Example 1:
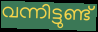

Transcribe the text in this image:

വന്നിട്ടുണ്ട്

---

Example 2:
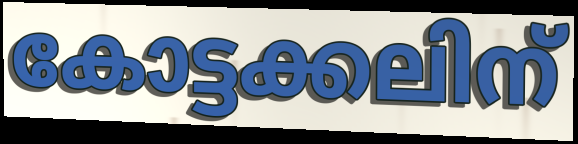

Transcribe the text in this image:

കോട്ടക്കലിന്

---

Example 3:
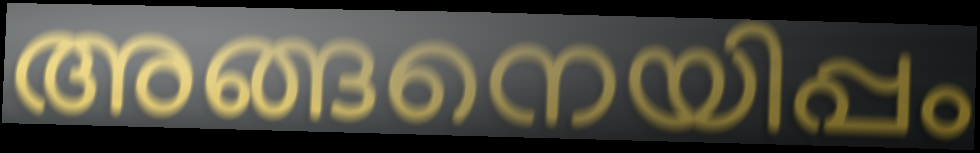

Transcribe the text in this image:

അങ്ങനെയിപ്പം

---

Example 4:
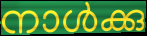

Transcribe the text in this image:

നാൾക്കു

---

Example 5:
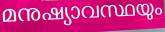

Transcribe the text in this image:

മനുഷ്യാവസ്ഥയും